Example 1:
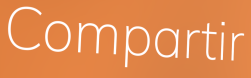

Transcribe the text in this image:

Compartir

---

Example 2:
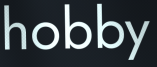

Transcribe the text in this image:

hobby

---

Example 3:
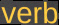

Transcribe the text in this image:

verb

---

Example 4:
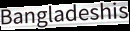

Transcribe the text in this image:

Bangladeshis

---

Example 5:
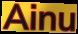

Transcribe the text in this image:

Ainu